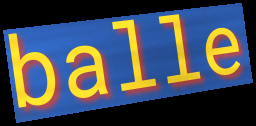
balle